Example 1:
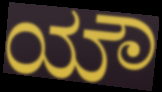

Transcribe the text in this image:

ಯೌ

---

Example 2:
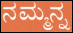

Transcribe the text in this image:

ನಮ್ಮನ್ನ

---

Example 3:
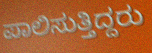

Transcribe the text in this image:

ಪಾಲಿಸುತ್ತಿದ್ದರು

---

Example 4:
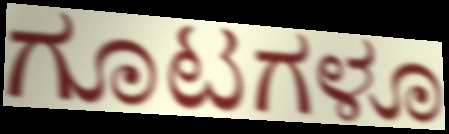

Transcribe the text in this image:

ಗೂಟಗಳೂ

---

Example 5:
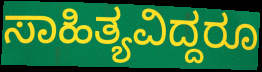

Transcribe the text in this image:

ಸಾಹಿತ್ಯವಿದ್ದರೂ